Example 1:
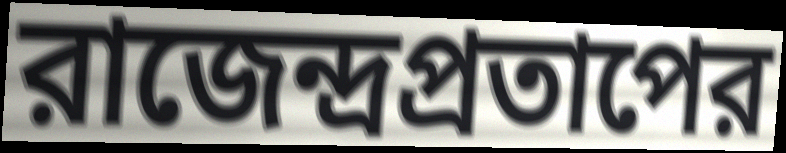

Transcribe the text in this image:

রাজেন্দ্রপ্রতাপের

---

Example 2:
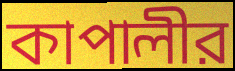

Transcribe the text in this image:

কাপালীর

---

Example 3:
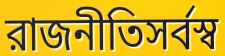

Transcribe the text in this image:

রাজনীতিসর্বস্ব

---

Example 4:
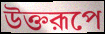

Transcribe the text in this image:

উক্তরূপে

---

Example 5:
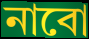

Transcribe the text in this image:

নাবো